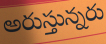
అరుస్తున్నరు